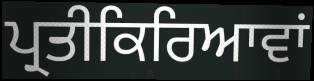
ਪ੍ਰਤੀਕਿਰਿਆਵਾਂ